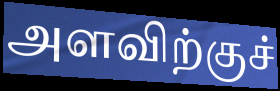
அளவிற்குச்